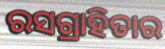
ରସଗ୍ରାହିତାର